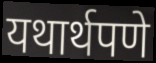
यथार्थपणे